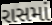
રાસમાં